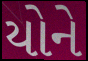
યોને